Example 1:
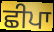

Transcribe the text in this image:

ਛੀਪਾ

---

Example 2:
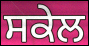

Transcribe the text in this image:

ਸਕੇਲ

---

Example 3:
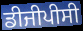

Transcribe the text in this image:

ਡੀਜੀਪੀਸੀ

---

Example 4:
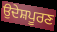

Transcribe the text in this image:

ਉਦੇਸ਼ਪੂਰਣ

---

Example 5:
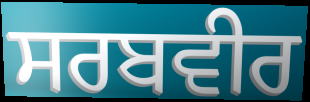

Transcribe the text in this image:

ਸਰਬਵੀਰ